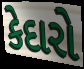
કેદારો